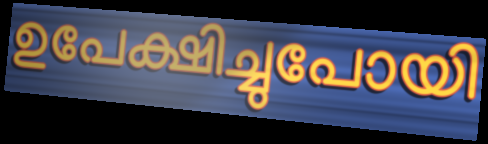
ഉപേക്ഷിച്ചുപോയി